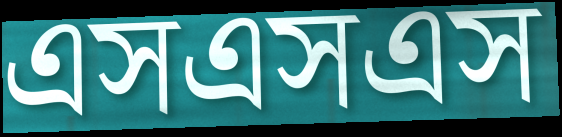
এসএসএস